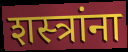
शस्त्रांना